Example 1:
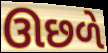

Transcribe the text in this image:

ઊછળે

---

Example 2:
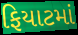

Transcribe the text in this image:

ફિયાટમાં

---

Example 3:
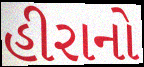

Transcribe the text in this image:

હીરાનો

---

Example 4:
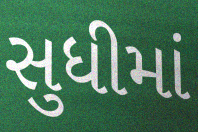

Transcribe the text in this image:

સુધીમાં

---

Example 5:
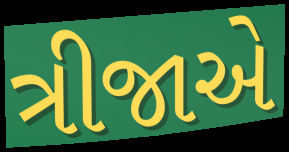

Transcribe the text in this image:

ત્રીજાએ